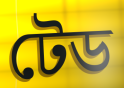
টেড